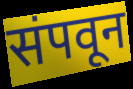
संपवून